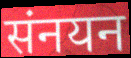
संनयन